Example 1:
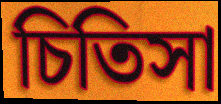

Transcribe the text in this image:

চিতিসা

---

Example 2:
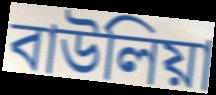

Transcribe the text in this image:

বাউলিয়া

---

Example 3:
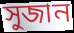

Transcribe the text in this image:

সুজান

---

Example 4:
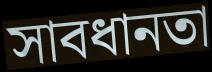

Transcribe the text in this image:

সাবধানতা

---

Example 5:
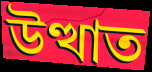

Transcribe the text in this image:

উত্থাত